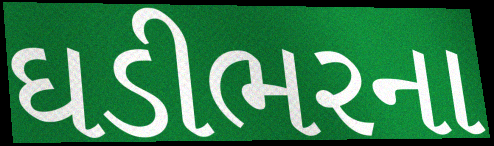
ઘડીભરના